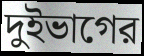
দুইভাগের